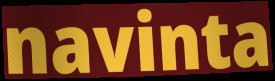
navinta